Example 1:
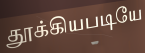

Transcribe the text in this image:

தூக்கியபடியே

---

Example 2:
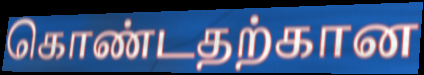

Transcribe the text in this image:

கொண்டதற்கான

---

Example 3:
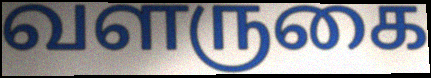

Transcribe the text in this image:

வளருகை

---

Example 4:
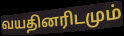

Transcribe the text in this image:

வயதினரிடமும்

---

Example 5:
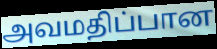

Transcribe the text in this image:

அவமதிப்பான